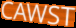
CAWST